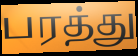
பரத்து